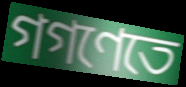
গগণেতে